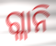
ଗ୍ଳାନି